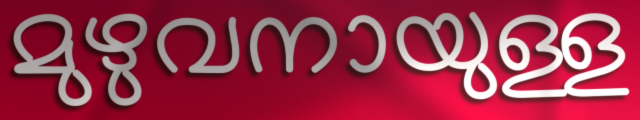
മുഴുവനായുള്ള